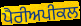
ਪੈਰੀਅਪੀਕਲ